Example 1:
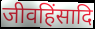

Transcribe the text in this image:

जीवहिंसादि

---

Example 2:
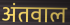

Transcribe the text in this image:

अंतवाल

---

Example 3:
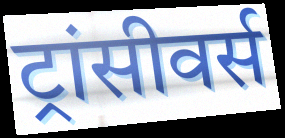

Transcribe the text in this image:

ट्रांसीवर्स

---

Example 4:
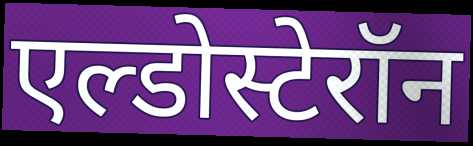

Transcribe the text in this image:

एल्डोस्टेरॉन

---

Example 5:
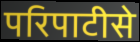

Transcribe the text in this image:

परिपाटीसे